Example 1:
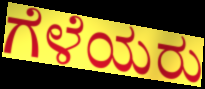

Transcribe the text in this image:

ಗೆಳೆಯರು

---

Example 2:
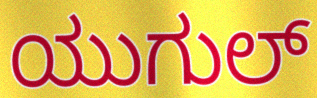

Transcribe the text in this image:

ಯುಗುಲ್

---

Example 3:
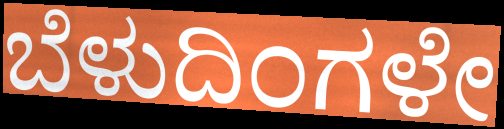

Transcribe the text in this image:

ಬೆಳುದಿಂಗಳೇ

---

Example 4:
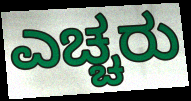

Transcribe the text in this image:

ಎಚ್ಚರು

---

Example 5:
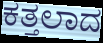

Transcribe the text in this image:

ಕತ್ತಲಾದ